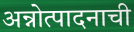
अन्नोत्पादनाची